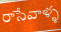
రాసేవాళ్ళ